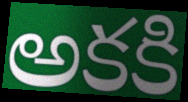
అకకి